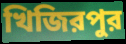
খিজিরপুর